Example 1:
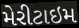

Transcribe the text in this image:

મેરીટાઇમ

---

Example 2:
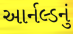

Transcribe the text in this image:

આર્નલ્ડનું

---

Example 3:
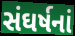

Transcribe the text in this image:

સંઘર્ષનાં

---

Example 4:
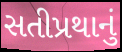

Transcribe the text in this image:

સતીપ્રથાનું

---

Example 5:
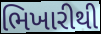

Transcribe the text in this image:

ભિખારીથી